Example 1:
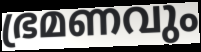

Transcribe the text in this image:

ഭ്രമണവും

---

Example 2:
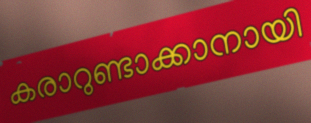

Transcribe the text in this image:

കരാറുണ്ടാക്കാനായി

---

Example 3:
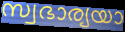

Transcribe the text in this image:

സ്വഭാര്യയാ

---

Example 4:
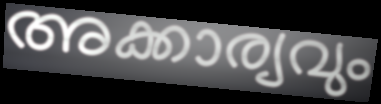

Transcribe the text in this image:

അക്കാര്യവും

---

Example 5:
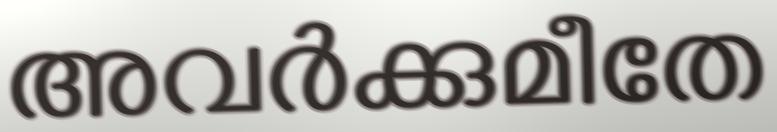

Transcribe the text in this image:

അവർക്കുമീതേ